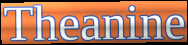
Theanine